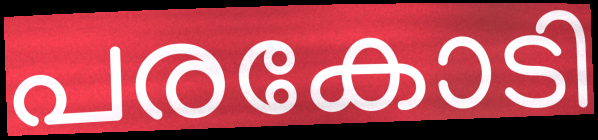
പരകോടി